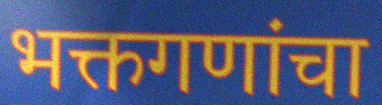
भक्तगणांचा